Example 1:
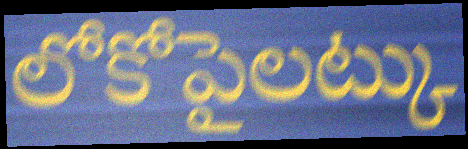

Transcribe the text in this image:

లోకోపైలట్కు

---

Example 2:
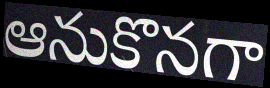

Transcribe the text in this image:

ఆనుకొనగా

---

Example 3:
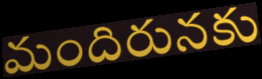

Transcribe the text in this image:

మందిరునకు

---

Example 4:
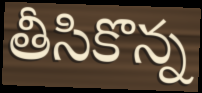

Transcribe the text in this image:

తీసికొన్న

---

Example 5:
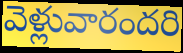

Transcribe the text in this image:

వెళ్లువారందరి